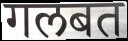
गलबत